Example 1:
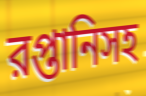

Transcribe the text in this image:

রপ্তানিসহ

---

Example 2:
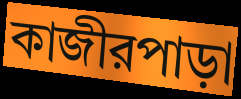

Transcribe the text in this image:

কাজীরপাড়া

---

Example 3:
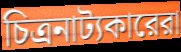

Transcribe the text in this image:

চিত্রনাট্যকারেরা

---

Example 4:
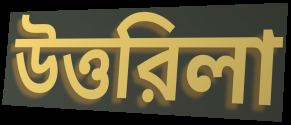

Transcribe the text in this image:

উত্তরিলা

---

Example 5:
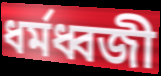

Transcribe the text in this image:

ধর্মধ্বজী